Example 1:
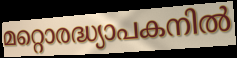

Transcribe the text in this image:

മറ്റൊരദ്ധ്യാപകനിൽ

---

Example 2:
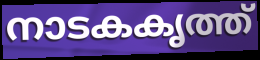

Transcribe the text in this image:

നാടകകൃത്ത്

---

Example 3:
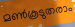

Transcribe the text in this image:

മൺകൂടുതരാം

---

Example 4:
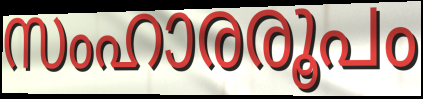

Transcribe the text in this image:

സംഹാരരൂപം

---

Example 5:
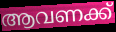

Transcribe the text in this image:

ആവണക്ക്